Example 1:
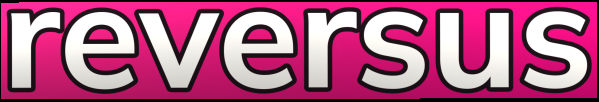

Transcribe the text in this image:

reversus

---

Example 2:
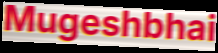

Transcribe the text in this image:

Mugeshbhai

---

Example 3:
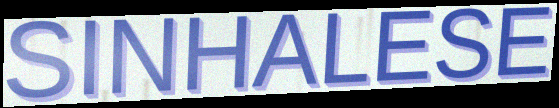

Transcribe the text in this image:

SINHALESE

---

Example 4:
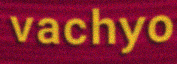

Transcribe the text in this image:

vachyo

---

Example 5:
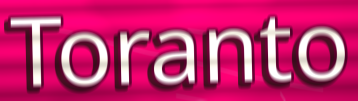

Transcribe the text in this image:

Toranto